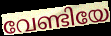
വേണ്ടിയേ